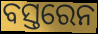
ବସ୍ତରେନ